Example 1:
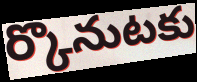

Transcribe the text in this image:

ర్కొనుటకు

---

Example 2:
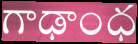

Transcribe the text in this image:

గాఢాంధ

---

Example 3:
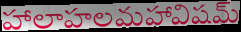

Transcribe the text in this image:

హాలాహలమహావిషమ్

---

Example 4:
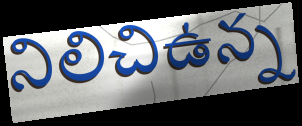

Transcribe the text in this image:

నిలిచిఉన్న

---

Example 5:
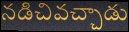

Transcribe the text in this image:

నడిచివచ్చాడు